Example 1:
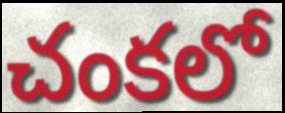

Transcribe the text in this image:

చంకలో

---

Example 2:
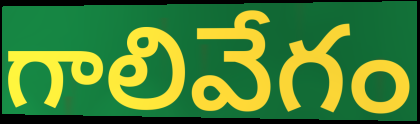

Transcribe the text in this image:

గాలివేగం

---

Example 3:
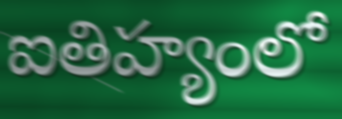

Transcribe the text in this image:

ఐతిహ్యంలో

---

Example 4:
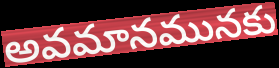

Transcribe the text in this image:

అవమానమునకు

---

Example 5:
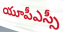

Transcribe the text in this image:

యూపీఎస్సీ